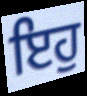
ਇਹੁ